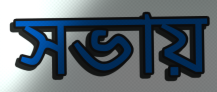
সভায়